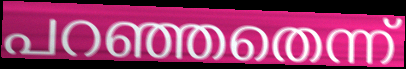
പറഞ്ഞതെന്ന്